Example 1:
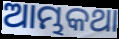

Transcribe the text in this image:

ଆମ୍ଭକଥା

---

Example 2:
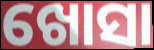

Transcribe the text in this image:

ଖୋସା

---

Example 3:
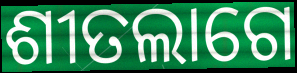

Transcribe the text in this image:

ଶୀତଲାଗେ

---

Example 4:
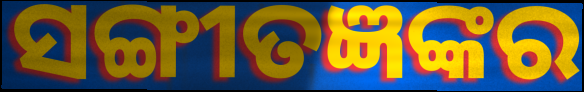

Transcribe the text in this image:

ସଙ୍ଗୀତଜ୍ଞଙ୍କର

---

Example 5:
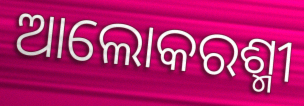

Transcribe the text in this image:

ଆଲୋକରଶ୍ମୀ